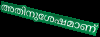
അതിനുശേഷമാണ്